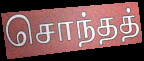
சொந்தத்